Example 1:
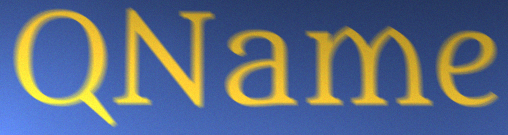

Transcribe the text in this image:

QName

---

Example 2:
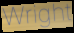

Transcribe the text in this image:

Wright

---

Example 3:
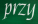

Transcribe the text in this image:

przy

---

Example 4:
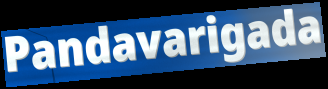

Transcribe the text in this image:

Pandavarigada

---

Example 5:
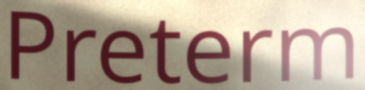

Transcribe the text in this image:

Preterm